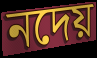
নদেয়